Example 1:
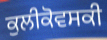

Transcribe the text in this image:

ਕੁਲੀਕੋਵਸਕੀ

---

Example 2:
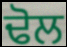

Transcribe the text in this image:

ਢੋਲ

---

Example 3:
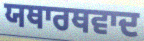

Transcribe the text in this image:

ਯਥਾਰਥਵਾਦ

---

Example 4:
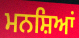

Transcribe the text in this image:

ਮਨਸ਼ਿਆਂ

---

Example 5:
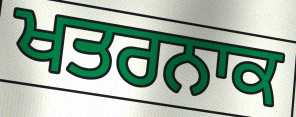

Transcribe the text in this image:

ਖਤਰਨਾਕ